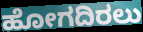
ಹೋಗದಿರಲು